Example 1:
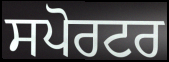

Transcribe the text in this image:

ਸਪੋਰਟਰ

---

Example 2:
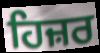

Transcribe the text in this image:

ਹਿਜ਼ਰ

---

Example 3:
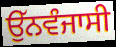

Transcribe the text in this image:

ਉੱਨਵੰਜਾਸੀ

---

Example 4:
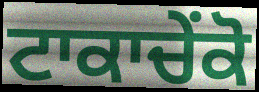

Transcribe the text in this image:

ਟਾਕਾਚੇਂਕੋ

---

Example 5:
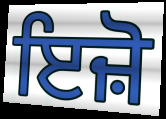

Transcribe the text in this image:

ਇਜ਼ੋ